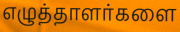
எழுத்தாளர்களை